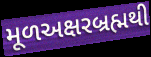
મૂળઅક્ષરબ્રહ્મથી